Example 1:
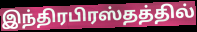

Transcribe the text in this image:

இந்திரபிரஸ்தத்தில்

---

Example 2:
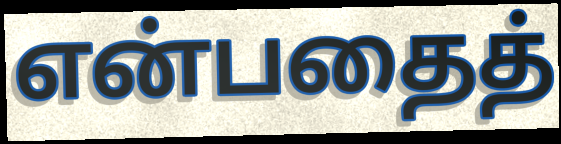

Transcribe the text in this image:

என்பதைத்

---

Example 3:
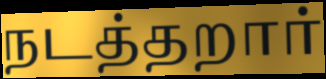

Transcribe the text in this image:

நடத்தறார்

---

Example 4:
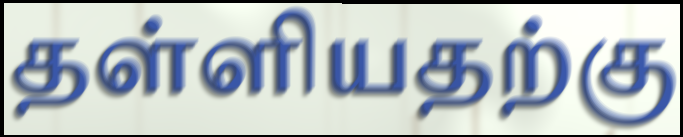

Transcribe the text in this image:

தள்ளியதற்கு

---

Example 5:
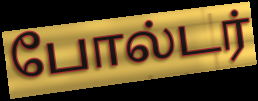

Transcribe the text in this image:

போல்டர்